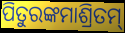
ପିତୁରଙ୍କମାଶ୍ରିତମ୍